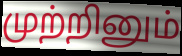
முற்றினும்